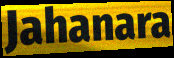
Jahanara